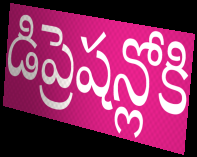
డిప్రెషన్లోకి